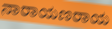
ನಾರಾಯಣರಾಯ